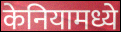
केनियामध्ये